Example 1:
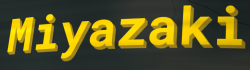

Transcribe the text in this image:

Miyazaki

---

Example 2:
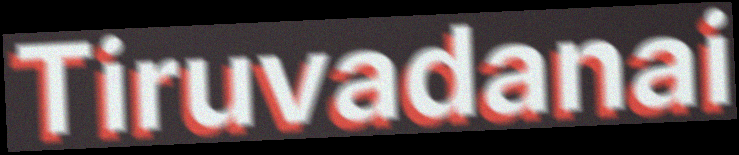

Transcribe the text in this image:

Tiruvadanai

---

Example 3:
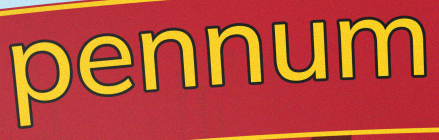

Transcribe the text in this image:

pennum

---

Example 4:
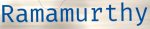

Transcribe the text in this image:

Ramamurthy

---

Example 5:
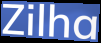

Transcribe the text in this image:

Zilha